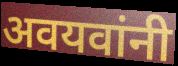
अवयवांनी